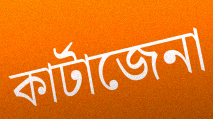
কাৰ্টাজেনা